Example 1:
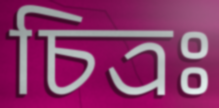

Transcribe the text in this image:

চিত্রঃ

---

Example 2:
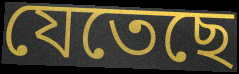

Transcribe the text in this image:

যেতেছে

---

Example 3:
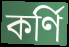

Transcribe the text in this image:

কর্ণি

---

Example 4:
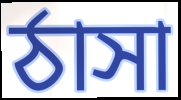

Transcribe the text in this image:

ঠাসা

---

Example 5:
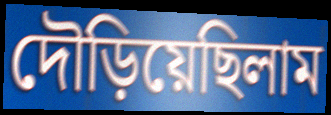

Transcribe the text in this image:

দৌড়িয়েছিলাম